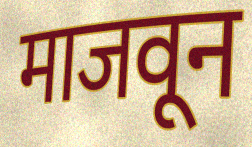
माजवून